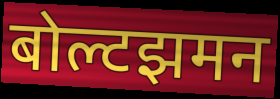
बोल्टझमन